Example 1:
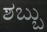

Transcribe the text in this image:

ಶಬ್ಬು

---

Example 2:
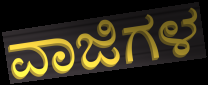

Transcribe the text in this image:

ವಾಜಿಗಳ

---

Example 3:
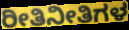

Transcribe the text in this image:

ರೀತಿನೀತಿಗಳ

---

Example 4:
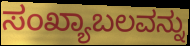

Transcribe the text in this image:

ಸಂಖ್ಯಾಬಲವನ್ನು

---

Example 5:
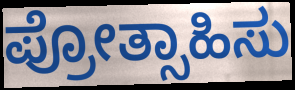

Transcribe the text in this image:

ಪ್ರೋತ್ಸಾಹಿಸು